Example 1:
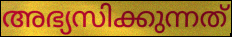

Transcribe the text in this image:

അഭ്യസിക്കുന്നത്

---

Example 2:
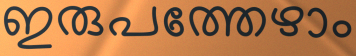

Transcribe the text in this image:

ഇരുപത്തേഴാം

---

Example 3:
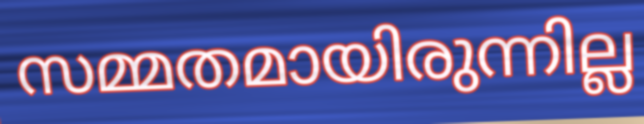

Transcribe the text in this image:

സമ്മതമായിരുന്നില്ല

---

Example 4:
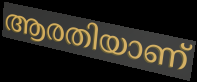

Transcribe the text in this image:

ആരതിയാണ്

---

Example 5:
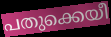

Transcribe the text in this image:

പതുക്കെയീ